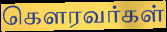
கெளரவர்கள்